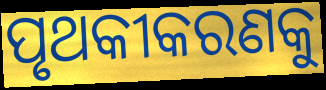
ପୃଥକୀକରଣକୁ